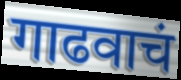
गाढवाचं